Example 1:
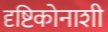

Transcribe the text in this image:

दृष्टिकोनाशी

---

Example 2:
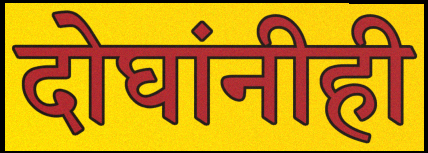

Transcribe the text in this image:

दोघांनीही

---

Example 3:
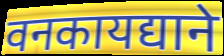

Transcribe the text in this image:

वनकायद्याने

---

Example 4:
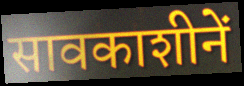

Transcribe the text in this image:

सावकाशीनें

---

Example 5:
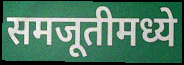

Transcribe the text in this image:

समजूतीमध्ये